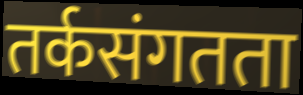
तर्कसंगतता